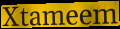
Xtameem